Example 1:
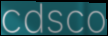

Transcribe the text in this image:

cdsco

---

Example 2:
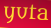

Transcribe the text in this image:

yuta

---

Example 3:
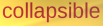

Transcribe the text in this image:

collapsible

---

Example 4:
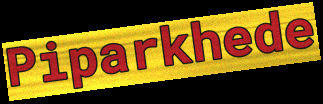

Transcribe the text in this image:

Piparkhede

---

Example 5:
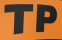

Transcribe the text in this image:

TP